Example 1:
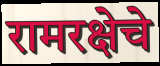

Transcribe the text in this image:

रामरक्षेचे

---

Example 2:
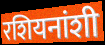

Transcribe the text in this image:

रशियनांशी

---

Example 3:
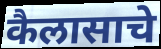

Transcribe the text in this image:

कैलासाचे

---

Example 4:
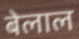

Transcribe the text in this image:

बेलाल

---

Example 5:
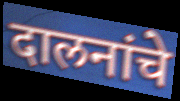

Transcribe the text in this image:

दालनांचे